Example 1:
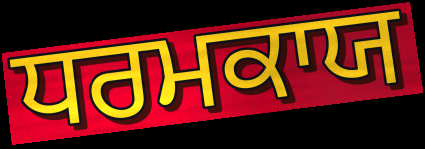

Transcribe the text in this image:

ਧਰਮਕਾਯ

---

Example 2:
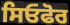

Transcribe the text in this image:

ਸਿਓਫੋਰ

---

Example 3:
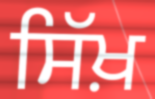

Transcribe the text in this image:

ਸਿੱਖ਼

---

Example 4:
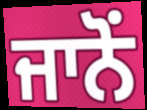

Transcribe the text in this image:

ਜਾਨੋਂ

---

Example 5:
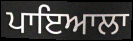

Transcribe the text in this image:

ਪਾਇਆਲਾ